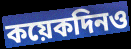
কয়েকদিনও